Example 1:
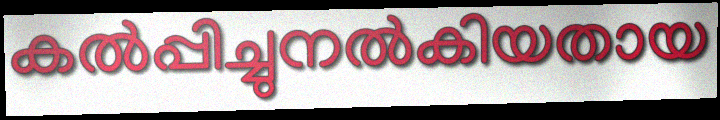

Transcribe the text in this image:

കൽപ്പിച്ചുനൽകിയതായ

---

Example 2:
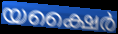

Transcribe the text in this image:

യക്ഷൈർ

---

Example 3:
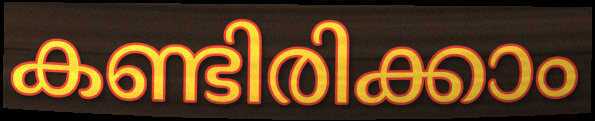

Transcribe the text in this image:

കണ്ടിരിക്കാം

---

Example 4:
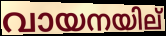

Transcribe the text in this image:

വായനയില്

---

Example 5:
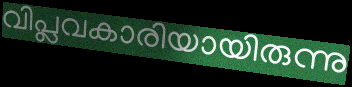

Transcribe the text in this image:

വിപ്ലവകാരിയായിരുന്നു